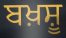
ਬਖ਼ਸ਼ੂ